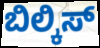
ಬಿಲ್ಕಿಸ್